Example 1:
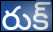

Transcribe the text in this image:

రుక్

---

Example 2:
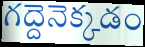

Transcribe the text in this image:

గద్దెనెక్కడం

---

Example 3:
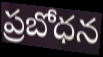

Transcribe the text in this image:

ప్రబోధన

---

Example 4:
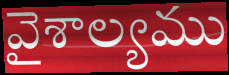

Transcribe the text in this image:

వైశాల్యము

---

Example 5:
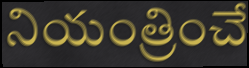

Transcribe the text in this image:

నియంత్రించే